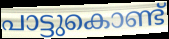
പാട്ടുകൊണ്ട്